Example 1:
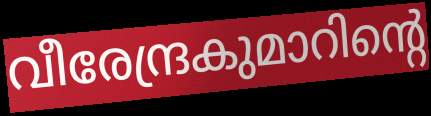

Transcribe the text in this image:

വീരേന്ദ്രകുമാറിന്റെ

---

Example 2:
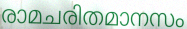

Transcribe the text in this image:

രാമചരിതമാനസം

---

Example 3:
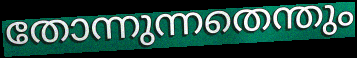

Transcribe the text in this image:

തോന്നുന്നതെന്തും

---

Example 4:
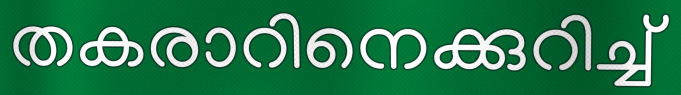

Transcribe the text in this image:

തകരാറിനെക്കുറിച്ച്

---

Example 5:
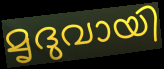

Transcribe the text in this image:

മൃദുവായി